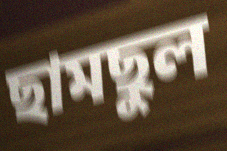
ছামছুল